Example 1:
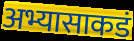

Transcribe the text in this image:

अभ्यासाकडं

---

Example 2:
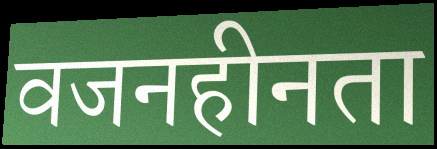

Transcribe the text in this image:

वजनहीनता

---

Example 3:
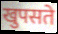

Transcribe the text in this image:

खुपसते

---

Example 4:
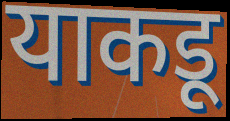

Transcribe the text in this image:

याकडू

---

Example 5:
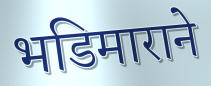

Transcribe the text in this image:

भडिमाराने